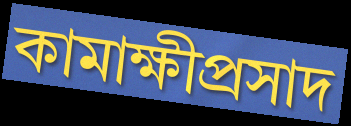
কামাক্ষীপ্রসাদ